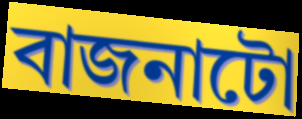
বাজনাটো